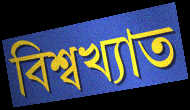
বিশ্বখ্যাত